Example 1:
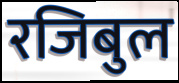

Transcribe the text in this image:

रजिबुल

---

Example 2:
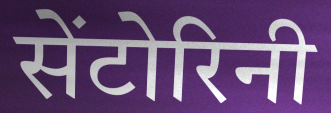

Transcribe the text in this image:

सेंटोरिनी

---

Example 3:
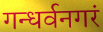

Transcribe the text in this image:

गन्धर्वनगरं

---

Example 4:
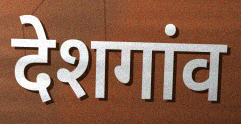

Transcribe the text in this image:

देशगांव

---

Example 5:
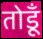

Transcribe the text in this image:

तोडूँ